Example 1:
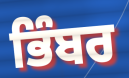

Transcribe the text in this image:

ਭਿੰਬਰ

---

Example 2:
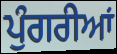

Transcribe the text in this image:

ਪੁੰਗਰੀਆਂ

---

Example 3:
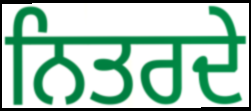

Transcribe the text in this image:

ਨਿਤਰਦੇ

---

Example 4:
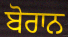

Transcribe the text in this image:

ਬੋਰਾਨ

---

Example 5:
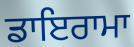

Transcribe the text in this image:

ਡਾਇਰਾਮਾ